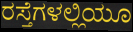
ರಸ್ತೆಗಳಲ್ಲಿಯೂ